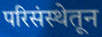
परिसंस्थेतून